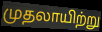
முதலாயிற்று